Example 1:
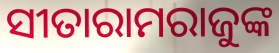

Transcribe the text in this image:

ସୀତାରାମରାଜୁଙ୍କ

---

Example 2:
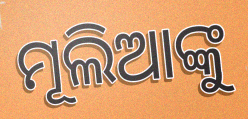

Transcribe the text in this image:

ମୂଲିଆଙ୍କୁ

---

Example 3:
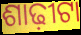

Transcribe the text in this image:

ଶାଢ଼ୀଟା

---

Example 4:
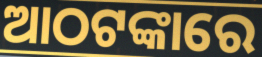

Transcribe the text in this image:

ଆଠଟଙ୍କାରେ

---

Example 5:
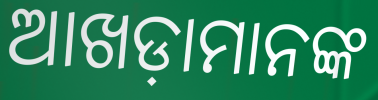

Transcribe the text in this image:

ଆଖଡ଼ାମାନଙ୍କ